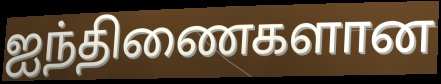
ஐந்திணைகளான